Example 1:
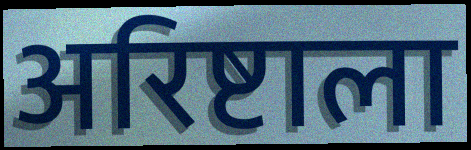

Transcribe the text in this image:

अरिष्टाला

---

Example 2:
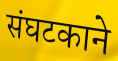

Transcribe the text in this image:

संघटकाने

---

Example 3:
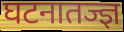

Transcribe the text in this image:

घटनातज्ज्ञ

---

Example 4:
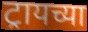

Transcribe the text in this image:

ट्रायच्या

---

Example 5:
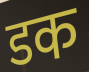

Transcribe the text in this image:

डक